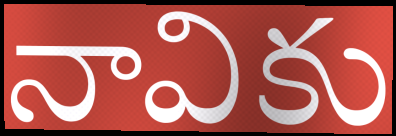
నావికు